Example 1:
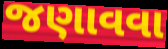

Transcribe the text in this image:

જણાવવા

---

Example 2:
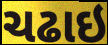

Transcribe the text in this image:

ચઢાઇ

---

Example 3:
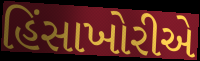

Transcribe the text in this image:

હિંસાખોરીએ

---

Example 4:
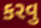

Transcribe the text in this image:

કરવુ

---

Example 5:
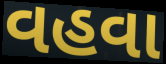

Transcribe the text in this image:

વહવા